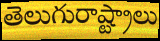
తెలుగురాష్ట్రాలు